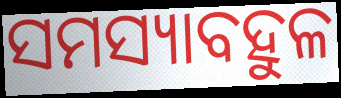
ସମସ୍ୟାବହୁଳ